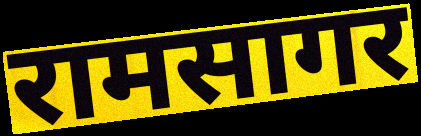
रामसागर